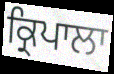
ਕ੍ਰਿਪਾਲਾ